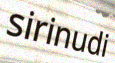
sirinudi